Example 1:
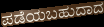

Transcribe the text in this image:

ಪಡೆಯಬಹುದಾದ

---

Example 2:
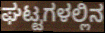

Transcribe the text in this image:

ಘಟ್ಟಗಳಲ್ಲಿನ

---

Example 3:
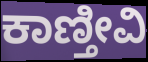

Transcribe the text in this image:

ಕಾಣ್ತೀವಿ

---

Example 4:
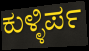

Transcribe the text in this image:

ಕುಳ್ಳಿರ್ಪ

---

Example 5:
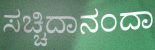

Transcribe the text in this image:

ಸಚ್ಚಿದಾನಂದಾ